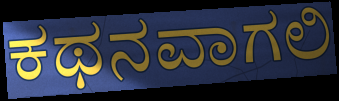
ಕಥನವಾಗಲಿ